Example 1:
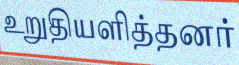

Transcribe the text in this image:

உறுதியளித்தனர்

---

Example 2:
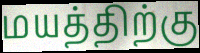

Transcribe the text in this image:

மயத்திற்கு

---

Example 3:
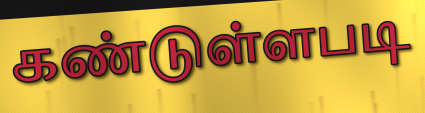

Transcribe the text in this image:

கண்டுள்ளபடி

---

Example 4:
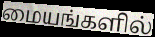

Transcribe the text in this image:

மையங்களில்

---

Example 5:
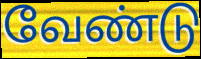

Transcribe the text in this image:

வேண்டு